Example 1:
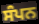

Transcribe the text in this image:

ਸੰਪਨ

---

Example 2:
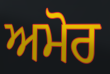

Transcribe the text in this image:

ਅਮੋਰ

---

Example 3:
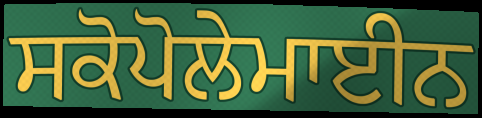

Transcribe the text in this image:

ਸਕੋਪੋਲੇਮਾਈਨ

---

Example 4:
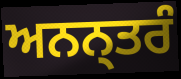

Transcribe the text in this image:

ਅਨਨ੍ਤਰੰ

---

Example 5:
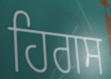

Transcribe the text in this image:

ਹਿਗਸ